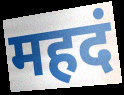
महदं